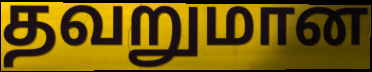
தவறுமான